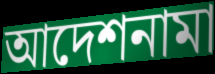
আদেশনামা